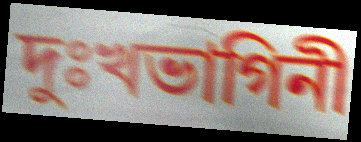
দুঃখভাগিনী